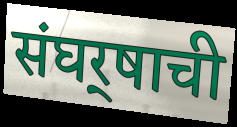
संघर्षाची